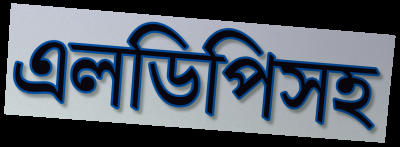
এলডিপিসহ